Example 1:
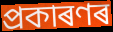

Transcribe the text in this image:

প্ৰকাৰণৰ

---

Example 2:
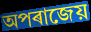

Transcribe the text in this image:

অপৰাজেয়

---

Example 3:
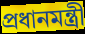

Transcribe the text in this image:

প্ৰধানমন্ত্ৰী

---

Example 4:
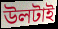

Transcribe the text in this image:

উলটাই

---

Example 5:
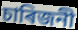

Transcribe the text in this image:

চাৰিজনী